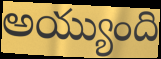
అయ్యుంది